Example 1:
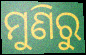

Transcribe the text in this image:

ମୁଣିରୁ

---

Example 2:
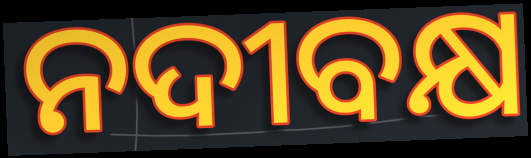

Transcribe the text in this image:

ନଦୀବକ୍ଷ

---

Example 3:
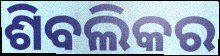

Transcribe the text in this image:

ଶିବଲିକର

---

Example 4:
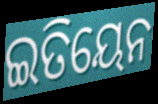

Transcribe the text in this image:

ଇତିୟେନ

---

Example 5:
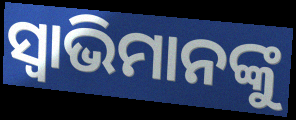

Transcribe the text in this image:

ସ୍ୱାଭିମାନଙ୍କୁ